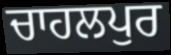
ਚਾਹਲਪੁਰ